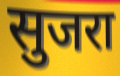
सुजरा